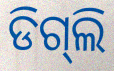
ଡିଗ୍‌ଲି